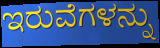
ಇರುವೆಗಳನ್ನು